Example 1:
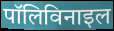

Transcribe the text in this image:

पॉलिविनाइल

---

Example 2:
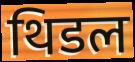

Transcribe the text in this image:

थिडल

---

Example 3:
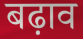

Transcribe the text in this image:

बढ़ाव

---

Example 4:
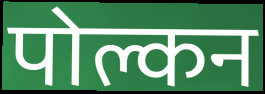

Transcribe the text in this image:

पोल्कन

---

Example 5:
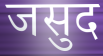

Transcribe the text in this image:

जसुद